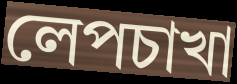
লেপচাখা